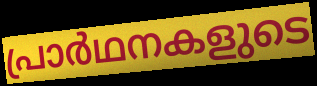
പ്രാർഥനകളുടെ